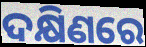
ଦକ୍ଷିଣରେ